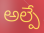
అల్పే